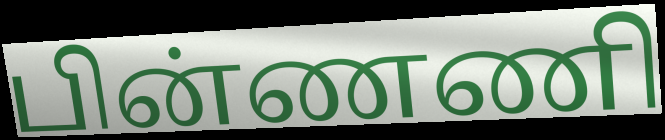
பின்ணணி